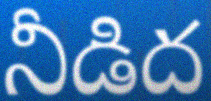
నీడిద